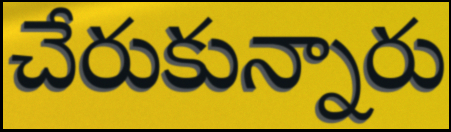
చేరుకున్నారు